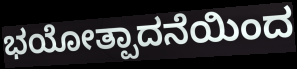
ಭಯೋತ್ಪಾದನೆಯಿಂದ